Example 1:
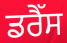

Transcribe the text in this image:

ਡਰੈੱਸ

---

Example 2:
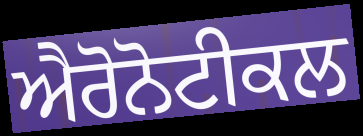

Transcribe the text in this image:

ਐਰੋਨੋਟੀਕਲ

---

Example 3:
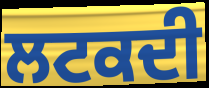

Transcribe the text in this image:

ਲਟਕਦੀ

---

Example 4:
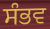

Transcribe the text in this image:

ਸੰਭਵ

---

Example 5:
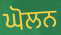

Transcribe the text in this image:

ਘੋਲਨ